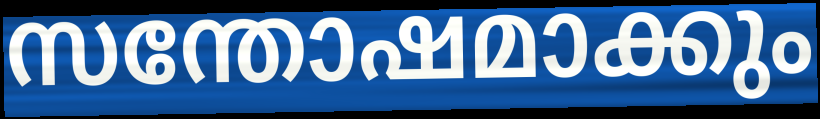
സന്തോഷമാക്കും